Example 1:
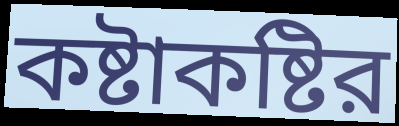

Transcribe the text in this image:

কষ্টাকষ্টির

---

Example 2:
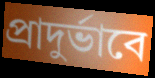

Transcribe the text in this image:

প্রাদুর্ভাবে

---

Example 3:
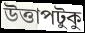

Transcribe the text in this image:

উত্তাপটুকু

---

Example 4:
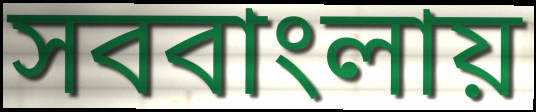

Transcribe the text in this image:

সববাংলায়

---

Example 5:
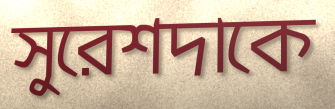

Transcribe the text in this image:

সুরেশদাকে